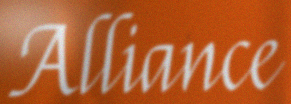
Alliance